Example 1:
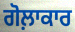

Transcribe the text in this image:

ਗੋਲ਼ਾਕਾਰ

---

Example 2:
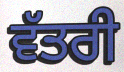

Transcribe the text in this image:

ਵੱਤਰੀ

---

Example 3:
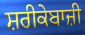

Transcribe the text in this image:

ਸ਼ਰੀਕੇਬਾਜ਼ੀ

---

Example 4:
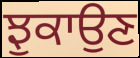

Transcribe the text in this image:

ਝੁਕਾਉਣ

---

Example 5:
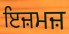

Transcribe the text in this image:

ਇਜ਼ਮਜ਼